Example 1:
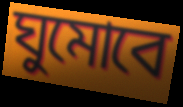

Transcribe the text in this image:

ঘুমোবে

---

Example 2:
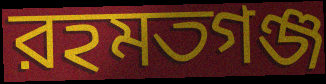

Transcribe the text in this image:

রহমতগঞ্জ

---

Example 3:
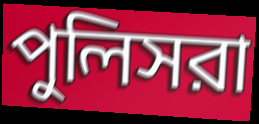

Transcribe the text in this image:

পুলিসরা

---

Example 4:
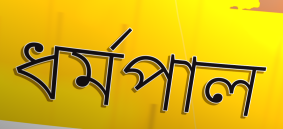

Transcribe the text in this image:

ধর্মপাল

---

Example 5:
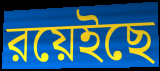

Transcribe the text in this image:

রয়েইছে